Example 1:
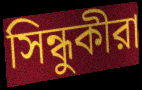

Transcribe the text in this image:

সিন্ধুকীরা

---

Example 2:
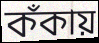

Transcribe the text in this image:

কঁকায়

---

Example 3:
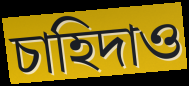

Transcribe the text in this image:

চাহিদাও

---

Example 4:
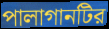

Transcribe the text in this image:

পালাগানটির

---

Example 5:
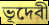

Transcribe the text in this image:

ভূদেবী